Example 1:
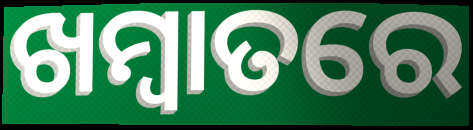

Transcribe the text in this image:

ଖମ୍ବାତରେ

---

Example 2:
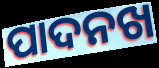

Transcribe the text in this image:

ପାଦନଖ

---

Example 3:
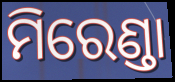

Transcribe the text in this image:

ମିରେଣ୍ଡା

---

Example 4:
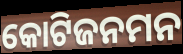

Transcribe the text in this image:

କୋଟିଜନମନ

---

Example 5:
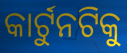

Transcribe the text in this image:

କାର୍ଟୁନଟିକୁ